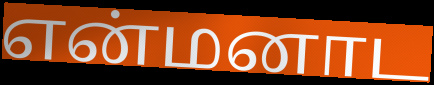
என்மனாட